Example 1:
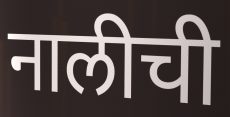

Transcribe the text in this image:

नालीची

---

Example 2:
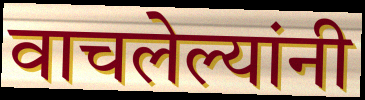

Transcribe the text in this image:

वाचलेल्यांनी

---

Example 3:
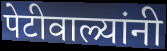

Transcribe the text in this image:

पेटीवाल्यांनी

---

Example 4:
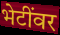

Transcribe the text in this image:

भेटींवर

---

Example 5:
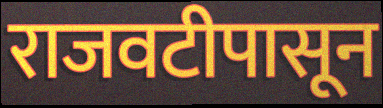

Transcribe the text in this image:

राजवटीपासून